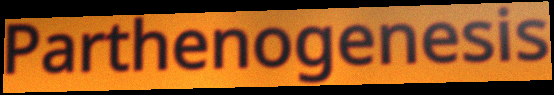
Parthenogenesis